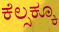
ಕೆಲ್ಸಕ್ಕೂ